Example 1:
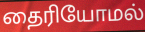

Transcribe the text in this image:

தைரியோமல்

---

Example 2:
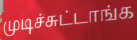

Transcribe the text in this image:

முடிச்சுட்டாங்க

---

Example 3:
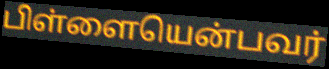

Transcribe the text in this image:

பிள்ளையென்பவர்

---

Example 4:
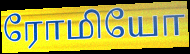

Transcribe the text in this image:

ரோமியோ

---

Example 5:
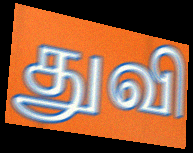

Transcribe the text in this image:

துவி